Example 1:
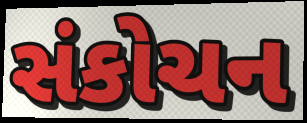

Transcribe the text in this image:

સંકોચન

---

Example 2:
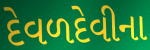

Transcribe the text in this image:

દેવળદેવીના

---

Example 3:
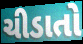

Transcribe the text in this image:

ચીડાતો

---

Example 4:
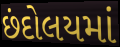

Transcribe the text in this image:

છંદોલયમાં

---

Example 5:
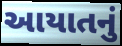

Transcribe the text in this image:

આયાતનું